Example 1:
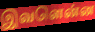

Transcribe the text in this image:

இவளென்ன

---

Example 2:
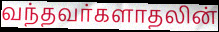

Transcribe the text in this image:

வந்தவர்களாதலின்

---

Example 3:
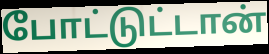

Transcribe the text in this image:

போட்டுட்டான்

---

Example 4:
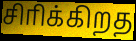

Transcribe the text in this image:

சிரிக்கிறத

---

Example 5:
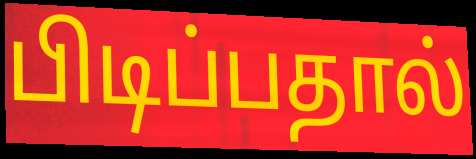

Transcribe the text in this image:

பிடிப்பதால்